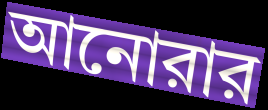
আনোরার